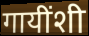
गायींशी